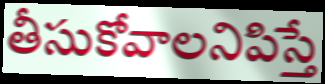
తీసుకోవాలనిపిస్తే